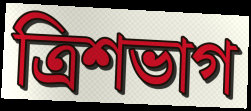
ত্রিশভাগ